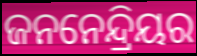
ଜନନେନ୍ଦ୍ରିୟର